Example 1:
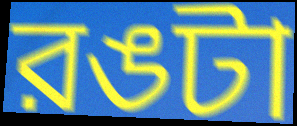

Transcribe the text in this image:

রঙটা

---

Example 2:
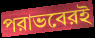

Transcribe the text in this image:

পরাভবেরই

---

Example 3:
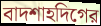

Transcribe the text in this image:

বাদশাহদিগের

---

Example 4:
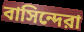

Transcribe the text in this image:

বাসিন্দেরা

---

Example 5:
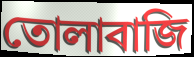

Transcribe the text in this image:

তোলাবাজি